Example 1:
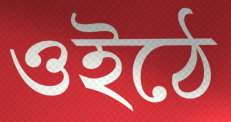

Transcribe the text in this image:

ওইঠে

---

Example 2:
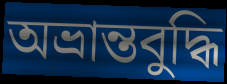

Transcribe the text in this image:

অভ্রান্তবুদ্ধি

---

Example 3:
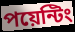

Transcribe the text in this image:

পয়েন্টিং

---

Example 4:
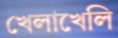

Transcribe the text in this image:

খেলাখেলি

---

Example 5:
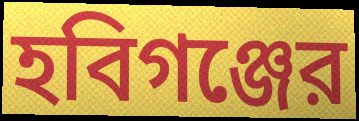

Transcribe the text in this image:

হবিগঞ্জের